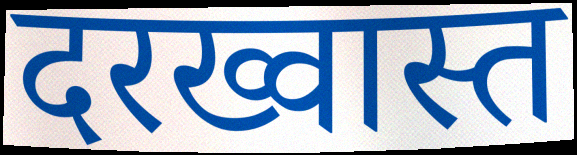
दरख्वास्त